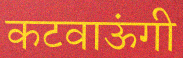
कटवाऊंगी